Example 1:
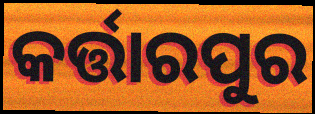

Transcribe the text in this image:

କର୍ତ୍ତାରପୁର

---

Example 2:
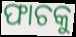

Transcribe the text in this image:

ଫାଚକୁ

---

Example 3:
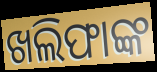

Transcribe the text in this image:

ଖଲିଫାଙ୍କ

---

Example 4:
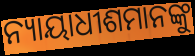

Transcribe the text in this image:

ନ୍ୟାୟାଧୀଶମାନଙ୍କୁ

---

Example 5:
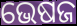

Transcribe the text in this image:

ଭେଷଜ